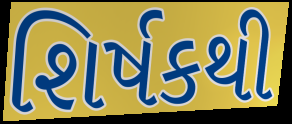
શિર્ષકથી